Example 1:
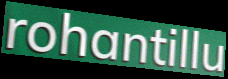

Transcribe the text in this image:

rohantillu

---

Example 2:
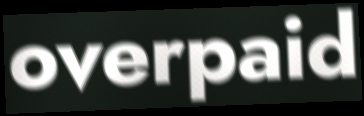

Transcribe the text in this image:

overpaid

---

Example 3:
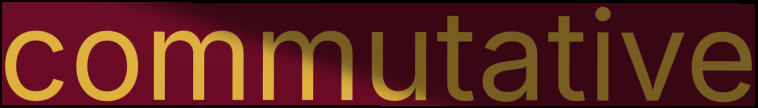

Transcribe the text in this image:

commutative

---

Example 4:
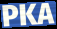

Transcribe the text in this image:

PKA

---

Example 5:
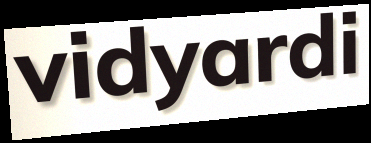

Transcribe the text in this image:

vidyardi